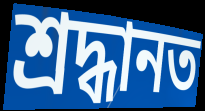
শ্রদ্ধানত